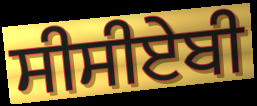
ਸੀਸੀਏਬੀ